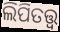
ଲିପିତତ୍ତ୍ୱ